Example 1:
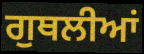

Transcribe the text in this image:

ਗੁਥਲੀਆਂ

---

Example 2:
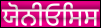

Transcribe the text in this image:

ਯੋਨੀਓਸਿਸ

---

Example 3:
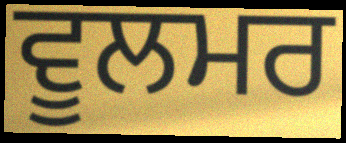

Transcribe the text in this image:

ਵੂਲਮਰ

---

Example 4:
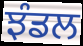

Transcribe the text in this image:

ਝੰਡਲ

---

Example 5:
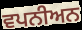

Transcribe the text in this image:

ਵਪਨੀਅਨ